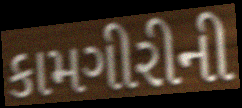
કામગીરીની